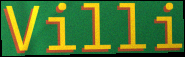
Villi